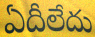
ఏదీలేదు